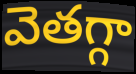
వెతగ్గా